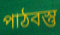
পাঠবস্তু